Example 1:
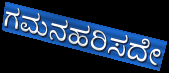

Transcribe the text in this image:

ಗಮನಹರಿಸದೇ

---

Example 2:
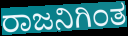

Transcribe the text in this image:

ರಾಜನಿಗಿಂತ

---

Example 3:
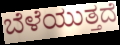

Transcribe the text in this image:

ಬೆಳೆಯುತ್ತದೆ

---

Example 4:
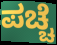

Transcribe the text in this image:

ಪಚ್ಚೆ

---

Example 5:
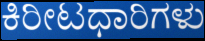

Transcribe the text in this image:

ಕಿರೀಟಧಾರಿಗಳು